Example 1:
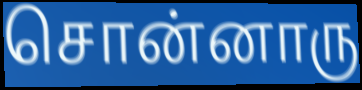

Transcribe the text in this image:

சொன்னாரு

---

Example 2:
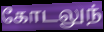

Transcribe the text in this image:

கோடலுந்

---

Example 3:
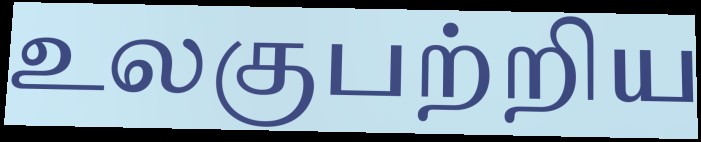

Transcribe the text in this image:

உலகுபற்றிய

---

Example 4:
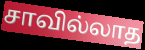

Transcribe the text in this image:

சாவில்லாத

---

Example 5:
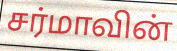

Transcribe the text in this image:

சர்மாவின்